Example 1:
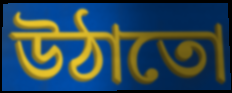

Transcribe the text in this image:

উঠাতো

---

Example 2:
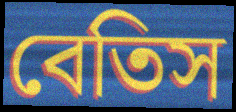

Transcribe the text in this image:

বেতিস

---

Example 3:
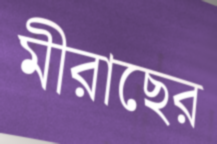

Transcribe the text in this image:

মীরাছের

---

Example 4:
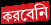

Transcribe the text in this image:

করবেনি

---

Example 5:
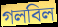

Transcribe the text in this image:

গলবিল